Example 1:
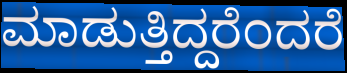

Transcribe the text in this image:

ಮಾಡುತ್ತಿದ್ದರೆಂದರೆ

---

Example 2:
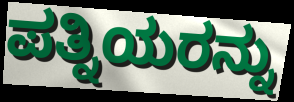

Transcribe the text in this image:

ಪತ್ನಿಯರನ್ನು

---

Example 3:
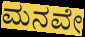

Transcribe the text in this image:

ಮನವೇ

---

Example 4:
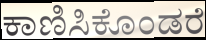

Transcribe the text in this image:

ಕಾಣಿಸಿಕೊಂಡರೆ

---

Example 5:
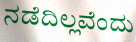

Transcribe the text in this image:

ನಡೆದಿಲ್ಲವೆಂದು